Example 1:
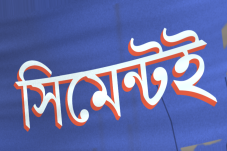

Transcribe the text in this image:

সিমেন্টই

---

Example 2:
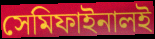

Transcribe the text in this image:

সেমিফাইনালই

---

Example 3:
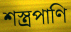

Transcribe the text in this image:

শস্ত্রপাণি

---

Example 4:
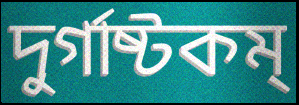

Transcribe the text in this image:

দুর্গাষ্টকম্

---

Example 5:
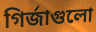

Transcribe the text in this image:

গির্জাগুলো